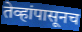
तेव्हांपासूनच